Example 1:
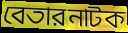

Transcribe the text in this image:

বেতারনাটক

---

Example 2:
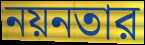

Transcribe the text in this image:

নয়নতার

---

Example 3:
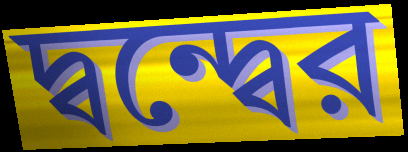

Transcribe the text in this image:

দ্বন্দ্বের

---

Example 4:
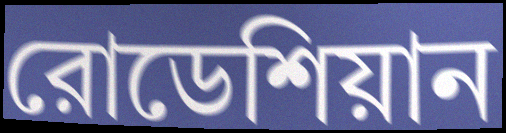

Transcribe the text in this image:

রোডেশিয়ান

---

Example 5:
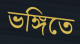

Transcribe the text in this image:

ভঙ্গিতে